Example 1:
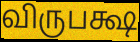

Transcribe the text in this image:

விருபக்ஷ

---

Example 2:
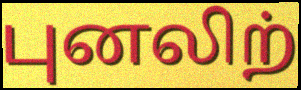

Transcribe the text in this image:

புனலிற்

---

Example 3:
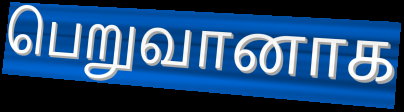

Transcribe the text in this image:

பெறுவானாக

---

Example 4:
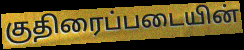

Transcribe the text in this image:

குதிரைப்படையின்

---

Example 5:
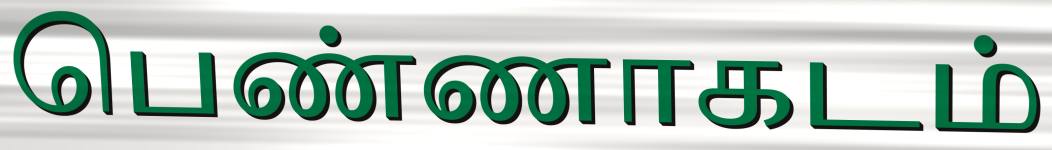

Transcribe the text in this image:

பெண்ணாகடம்